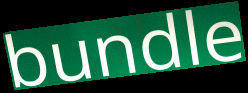
bundle